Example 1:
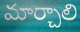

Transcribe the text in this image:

మార్చాలి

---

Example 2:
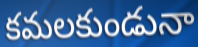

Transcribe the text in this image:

కమలకుండునా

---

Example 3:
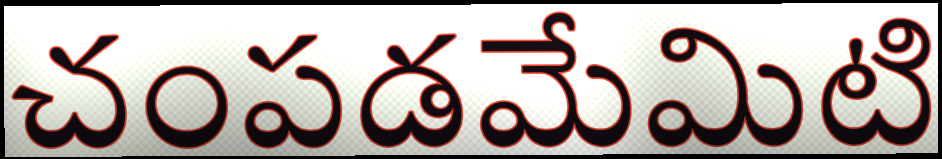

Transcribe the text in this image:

చంపడమేమిటి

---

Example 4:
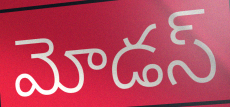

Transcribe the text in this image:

మోడస్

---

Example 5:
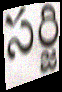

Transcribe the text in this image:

సర్జి